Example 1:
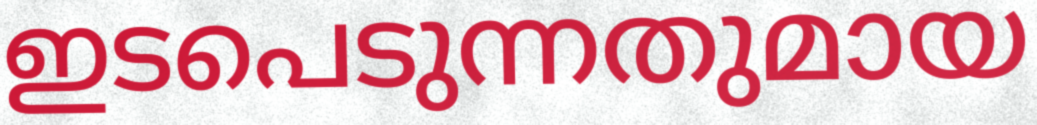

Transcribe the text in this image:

ഇടപെടുന്നതുമായ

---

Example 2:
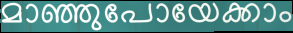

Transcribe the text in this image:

മാഞ്ഞുപോയേക്കാം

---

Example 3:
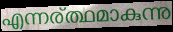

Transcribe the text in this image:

എന്നര്ത്ഥമാകുന്നു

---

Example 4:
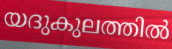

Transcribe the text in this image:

യദുകുലത്തിൽ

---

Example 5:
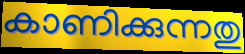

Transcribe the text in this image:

കാണിക്കുന്നതു